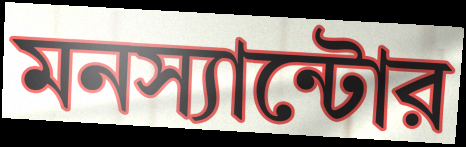
মনস্যান্টোর